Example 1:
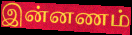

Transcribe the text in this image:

இன்னணம்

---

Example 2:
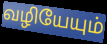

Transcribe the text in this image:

வழியேயும்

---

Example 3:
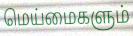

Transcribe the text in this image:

மெய்மைகளும்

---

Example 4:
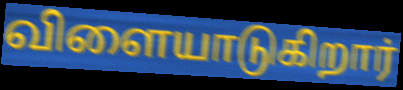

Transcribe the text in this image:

விளையாடுகிறார்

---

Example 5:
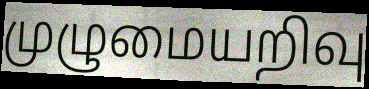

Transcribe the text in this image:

முழுமையறிவு